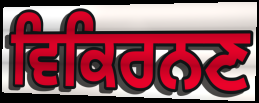
ਵਿਕਿਰਨਣ